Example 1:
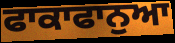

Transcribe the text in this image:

ਫਾਕਾਫਾਨੁਆ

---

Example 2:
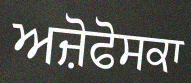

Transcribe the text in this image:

ਅਜ਼ੋਫੋਸਕਾ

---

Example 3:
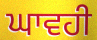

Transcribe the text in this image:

ਘਾਵਹੀ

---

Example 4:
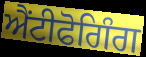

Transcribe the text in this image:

ਐਂਟੀਫੋਗਿੰਗ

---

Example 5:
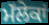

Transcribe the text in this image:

ਮੱਲੇਕਾਂ